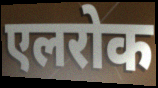
एलरोक